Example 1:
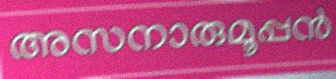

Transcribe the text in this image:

അസനാരുമൂപ്പൻ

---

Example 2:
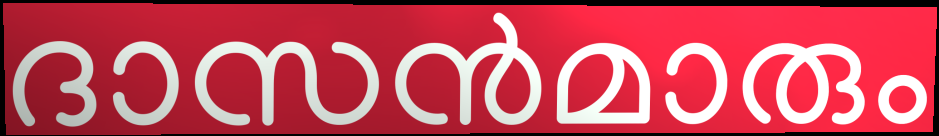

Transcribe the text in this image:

ദാസൻമാരും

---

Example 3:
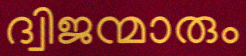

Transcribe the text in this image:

ദ്വിജന്മാരും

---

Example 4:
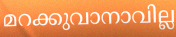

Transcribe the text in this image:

മറക്കുവാനാവില്ല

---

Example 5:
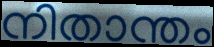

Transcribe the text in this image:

നിതാന്തം